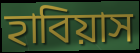
হাবিয়াস